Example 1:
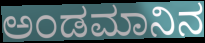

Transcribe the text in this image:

ಅಂಡಮಾನಿನ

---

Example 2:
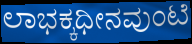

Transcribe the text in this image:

ಲಾಭಕ್ಕಧೀನವುಂಟೆ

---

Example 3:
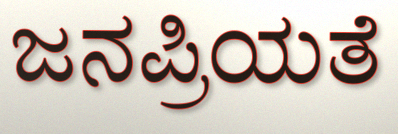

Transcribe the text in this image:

ಜನಪ್ರಿಯತೆ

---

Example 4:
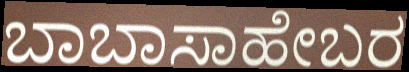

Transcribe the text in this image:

ಬಾಬಾಸಾಹೇಬರ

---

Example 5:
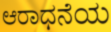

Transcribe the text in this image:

ಆರಾಧನೆಯ